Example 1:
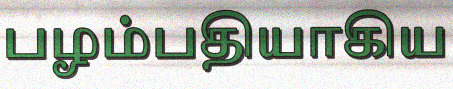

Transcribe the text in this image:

பழம்பதியாகிய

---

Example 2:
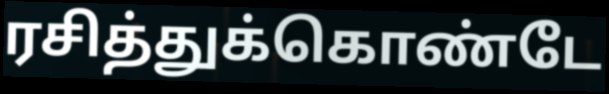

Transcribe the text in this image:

ரசித்துக்கொண்டே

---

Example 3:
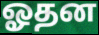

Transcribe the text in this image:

ஓதன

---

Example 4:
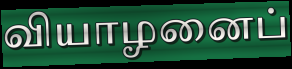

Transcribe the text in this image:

வியாழனைப்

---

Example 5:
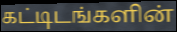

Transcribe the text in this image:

கட்டிடங்களின்